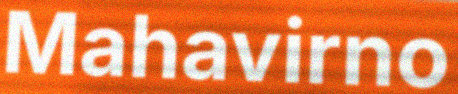
Mahavirno